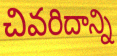
చివరిదాన్ని